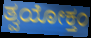
ತ್ವಯೋಕ್ತಂ